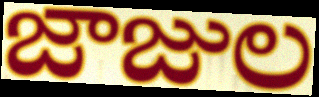
జాజుల